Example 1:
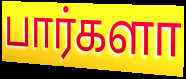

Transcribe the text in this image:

பார்களா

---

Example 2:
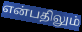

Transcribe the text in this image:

என்பதிலும்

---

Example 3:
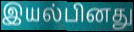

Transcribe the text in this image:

இயல்பினது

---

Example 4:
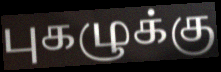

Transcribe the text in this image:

புகழுக்கு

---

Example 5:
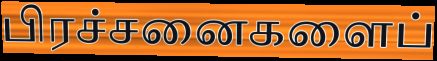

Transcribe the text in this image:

பிரச்சனைகளைப்